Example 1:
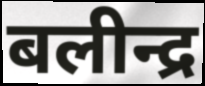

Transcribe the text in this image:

बलीन्द्र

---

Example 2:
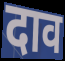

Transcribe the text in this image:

दाव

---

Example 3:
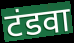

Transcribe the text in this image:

टंडवा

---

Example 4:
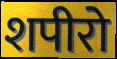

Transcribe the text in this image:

शपीरो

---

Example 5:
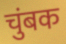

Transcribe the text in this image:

चुंबक